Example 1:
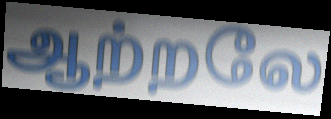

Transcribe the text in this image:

ஆற்றலே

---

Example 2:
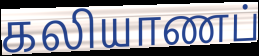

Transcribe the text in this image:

கலியாணப்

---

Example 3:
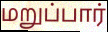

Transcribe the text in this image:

மறுப்பார்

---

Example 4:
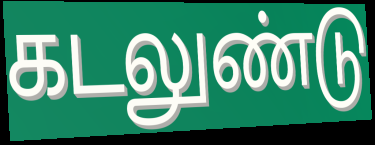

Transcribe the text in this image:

கடலுண்டு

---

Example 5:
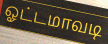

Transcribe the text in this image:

ஓட்டமாவடி